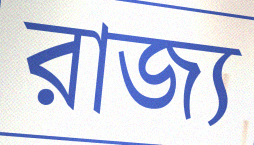
রাজ্য